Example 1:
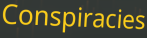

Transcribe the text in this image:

Conspiracies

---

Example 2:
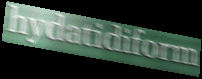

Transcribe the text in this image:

hydatidiform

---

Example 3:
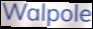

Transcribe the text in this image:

Walpole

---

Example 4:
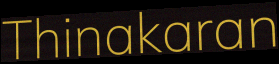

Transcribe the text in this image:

Thinakaran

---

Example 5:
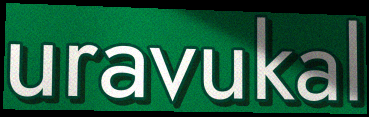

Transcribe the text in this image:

uravukal